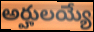
అర్హులయ్యే